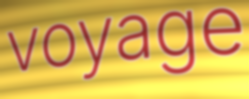
voyage